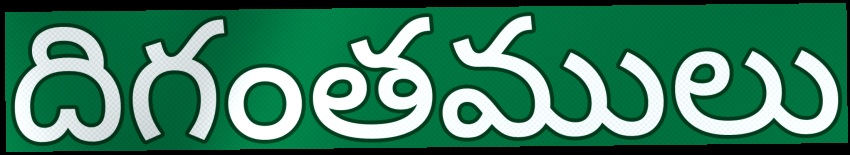
దిగంతములు